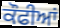
ਕੌਫੀਆਂ